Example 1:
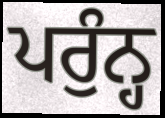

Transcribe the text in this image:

ਪਰੁੰਨ੍ਹ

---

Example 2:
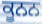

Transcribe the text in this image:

ਕੂਨਨ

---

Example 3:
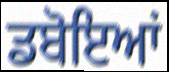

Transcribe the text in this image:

ਡਬੋਇਆਂ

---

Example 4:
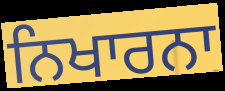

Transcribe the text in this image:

ਨਿਖਾਰਨਾ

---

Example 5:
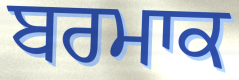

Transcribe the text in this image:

ਬਰਮਾਕ